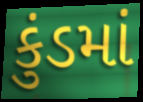
કુંડમાં